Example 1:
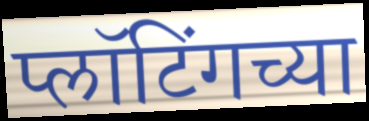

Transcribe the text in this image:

प्लॉटिंगच्या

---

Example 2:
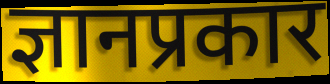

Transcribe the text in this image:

ज्ञानप्रकार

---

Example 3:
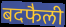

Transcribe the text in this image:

बदफैली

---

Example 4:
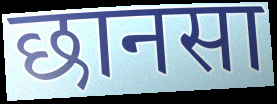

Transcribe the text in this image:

छानसा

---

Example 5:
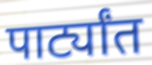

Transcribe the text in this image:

पार्ट्यांत